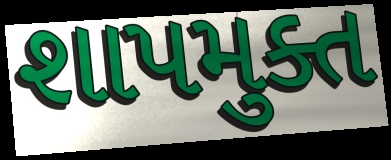
શાપમુક્ત